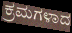
ಕ್ರಮಗಳಾದ